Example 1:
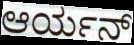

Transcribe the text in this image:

ಆರ್ಯನ್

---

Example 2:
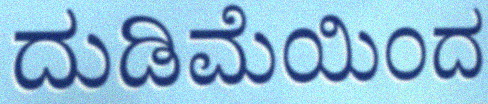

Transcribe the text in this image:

ದುಡಿಮೆಯಿಂದ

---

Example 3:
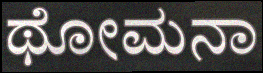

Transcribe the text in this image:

ಥೋಮನಾ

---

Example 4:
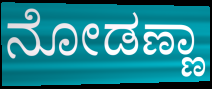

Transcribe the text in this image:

ನೋಡಣ್ಣಾ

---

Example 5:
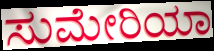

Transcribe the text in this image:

ಸುಮೇರಿಯಾ